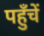
पहुँचें